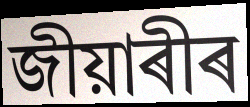
জীয়াৰীৰ